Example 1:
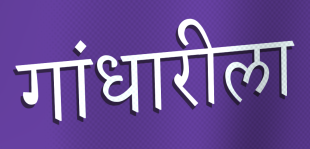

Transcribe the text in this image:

गांधारीला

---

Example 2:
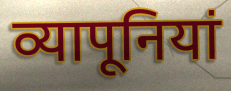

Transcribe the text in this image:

व्यापूनियां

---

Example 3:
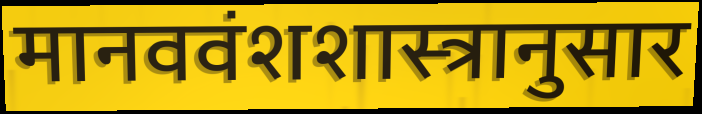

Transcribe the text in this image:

मानववंशशास्त्रानुसार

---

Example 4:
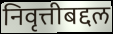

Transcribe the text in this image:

निवृत्तीबद्दल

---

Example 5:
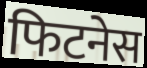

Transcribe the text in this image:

फिटनेस